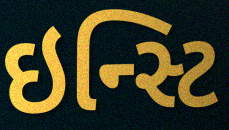
ઇન્સ્ટિ